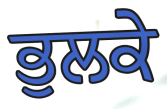
ਭੁਲਕੇ